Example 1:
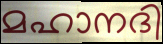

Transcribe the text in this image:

മഹാനദി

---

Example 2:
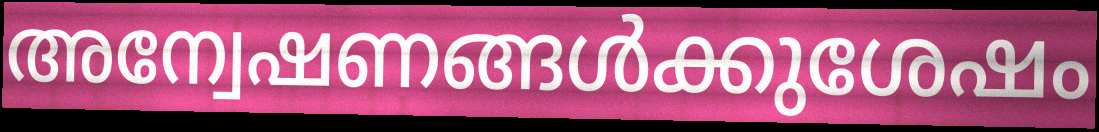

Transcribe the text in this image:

അന്വേഷണങ്ങൾക്കുശേഷം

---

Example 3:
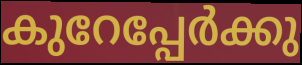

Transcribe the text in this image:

കുറേപ്പേർക്കു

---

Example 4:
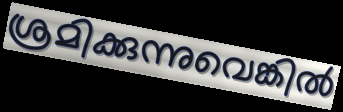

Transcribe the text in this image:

ശ്രമിക്കുന്നുവെങ്കിൽ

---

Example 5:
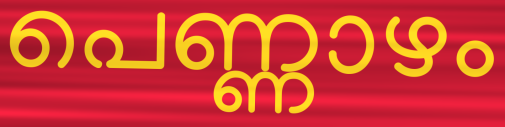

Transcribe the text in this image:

പെണ്ണാഴം